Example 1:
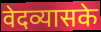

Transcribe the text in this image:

वेदव्यासके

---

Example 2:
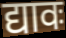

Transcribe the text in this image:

द्यावः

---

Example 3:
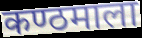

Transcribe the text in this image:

कण्ठमाला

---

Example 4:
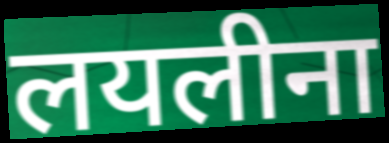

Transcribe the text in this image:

लयलीना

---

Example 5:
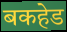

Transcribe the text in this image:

बकहेड